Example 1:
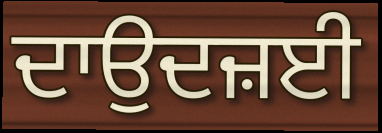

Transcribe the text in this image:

ਦਾਉਦਜ਼ਈ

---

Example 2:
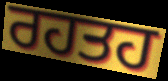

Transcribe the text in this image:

ਰਹਤਹ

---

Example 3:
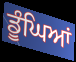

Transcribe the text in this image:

ਡੂੰਘਿਆਂ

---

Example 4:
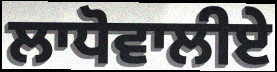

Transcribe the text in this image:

ਲਾਧੋਵਾਲੀਏ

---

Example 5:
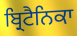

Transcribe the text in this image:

ਬ੍ਰਿਟੈਨਿਕਾ